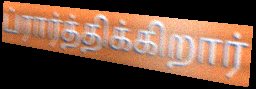
ப்ரார்த்திக்கிறார்